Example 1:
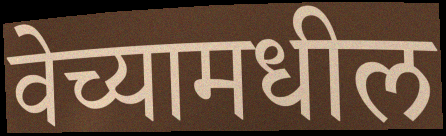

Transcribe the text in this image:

वेच्यामधील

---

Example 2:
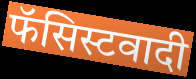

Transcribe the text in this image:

फॅसिस्टवादी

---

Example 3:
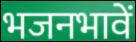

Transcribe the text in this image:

भजनभावें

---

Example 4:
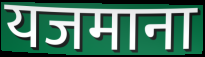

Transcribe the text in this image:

यजमाना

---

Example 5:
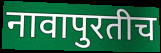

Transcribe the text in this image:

नावापुरतीच